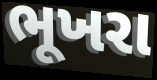
ભૂખરા